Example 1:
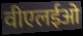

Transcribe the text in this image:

वीएलईओ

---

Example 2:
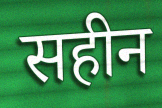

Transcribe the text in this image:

सहीन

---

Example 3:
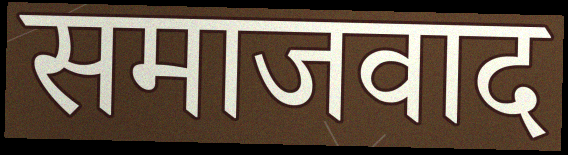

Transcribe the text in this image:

समाजवाद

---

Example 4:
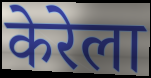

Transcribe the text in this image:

केरेला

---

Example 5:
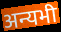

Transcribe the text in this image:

अन्यभी